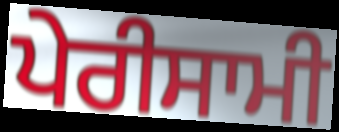
ਪੇਰੀਸਾਮੀ